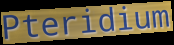
Pteridium